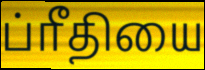
ப்ரீதியை